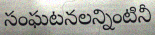
సంఘటనలన్నింటినీ